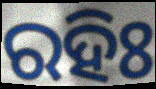
ରହିଃ